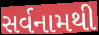
સર્વનામથી